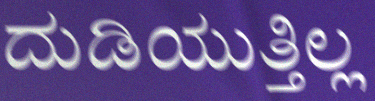
ದುಡಿಯುತ್ತಿಲ್ಲ